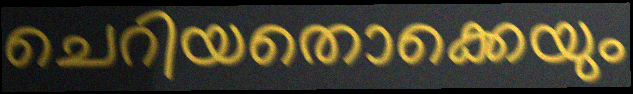
ചെറിയതൊക്കെയും